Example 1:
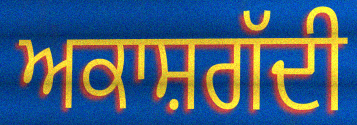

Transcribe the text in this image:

ਅਕਾਸ਼ਗੱਦੀ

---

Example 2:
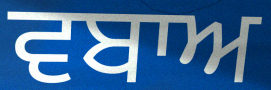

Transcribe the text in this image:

ਵਬਾਅ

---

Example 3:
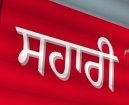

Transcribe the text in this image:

ਸਹਾਰੀ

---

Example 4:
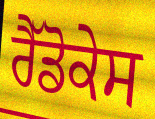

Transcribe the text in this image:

ਰੈੱਡੋਕੇਸ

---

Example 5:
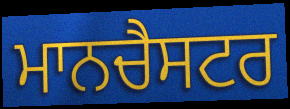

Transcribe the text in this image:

ਮਾਨਚੈਸਟਰ